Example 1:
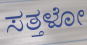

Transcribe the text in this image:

ಸತ್ತಳೋ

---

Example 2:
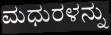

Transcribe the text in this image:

ಮಧುರಳನ್ನು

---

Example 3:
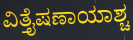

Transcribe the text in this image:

ವಿತ್ತೈಷಣಾಯಾಶ್ಚ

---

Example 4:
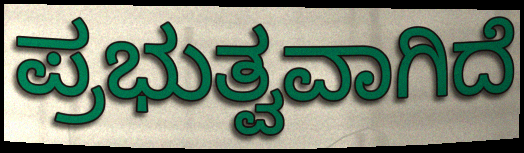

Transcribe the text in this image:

ಪ್ರಭುತ್ವವಾಗಿದೆ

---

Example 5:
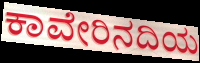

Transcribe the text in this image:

ಕಾವೇರಿನದಿಯ